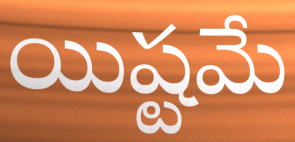
యిష్టమే